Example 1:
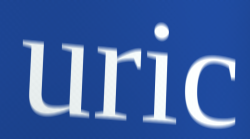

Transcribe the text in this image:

uric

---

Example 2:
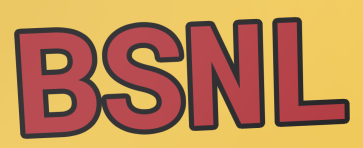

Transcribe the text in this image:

BSNL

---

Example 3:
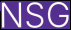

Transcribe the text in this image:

NSG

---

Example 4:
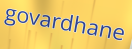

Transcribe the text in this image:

govardhane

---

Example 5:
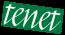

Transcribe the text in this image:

tenet